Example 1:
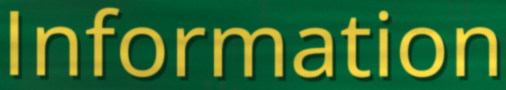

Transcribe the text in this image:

Information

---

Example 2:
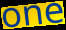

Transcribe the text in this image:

one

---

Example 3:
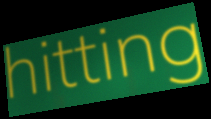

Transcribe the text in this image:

hitting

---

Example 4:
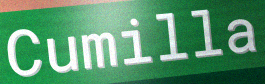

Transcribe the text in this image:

Cumilla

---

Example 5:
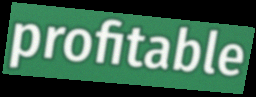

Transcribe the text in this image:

profitable